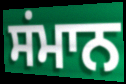
ਸਂਮਾਨ